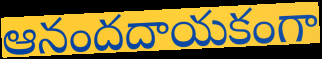
ఆనందదాయకంగా